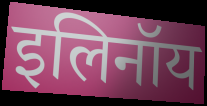
इलिनॉय